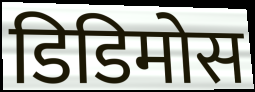
डिडिमोस